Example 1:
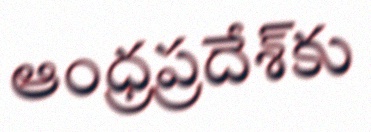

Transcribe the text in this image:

ఆంధ్రప్రదేశ్‌కు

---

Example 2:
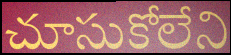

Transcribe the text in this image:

చూసుకోలేని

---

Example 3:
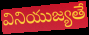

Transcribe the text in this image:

వినియుజ్యతే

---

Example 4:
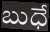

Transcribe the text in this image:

బుధే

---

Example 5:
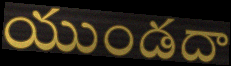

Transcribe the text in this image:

యుండదా